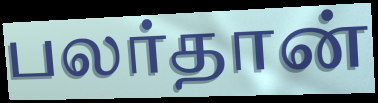
பலர்தான்